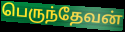
பெருந்தேவன்